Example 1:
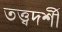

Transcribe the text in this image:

তত্ত্বদর্শী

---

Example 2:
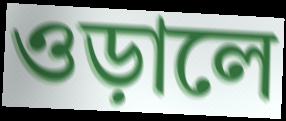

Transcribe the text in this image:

ওড়ালে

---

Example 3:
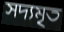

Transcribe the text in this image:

সদ্যমৃত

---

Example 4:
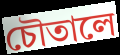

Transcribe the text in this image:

চৌতালে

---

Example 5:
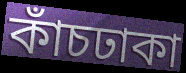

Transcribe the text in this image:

কাঁচঢাকা